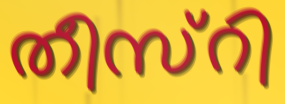
തീസ്റി